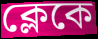
ক্লেকে